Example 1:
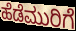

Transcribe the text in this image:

ಹೆಡೆಮುರಿಗೆ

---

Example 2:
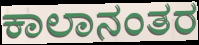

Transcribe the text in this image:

ಕಾಲಾನಂತರ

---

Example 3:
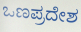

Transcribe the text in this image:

ಒಣಪ್ರದೇಶ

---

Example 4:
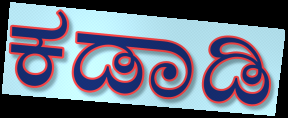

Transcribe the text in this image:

ಕಡಾಡಿ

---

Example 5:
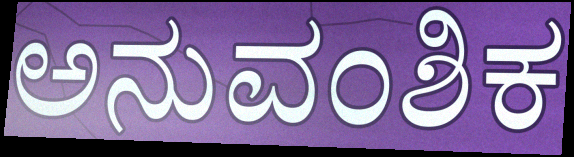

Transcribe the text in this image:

ಅನುವಂಶಿಕ